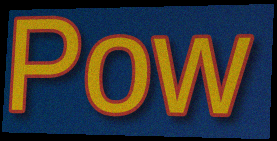
Pow